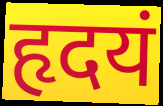
हृदयं